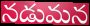
నడుమన